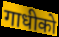
गाधीको